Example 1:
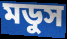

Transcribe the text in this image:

মডুস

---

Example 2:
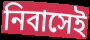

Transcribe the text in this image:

নিবাসেই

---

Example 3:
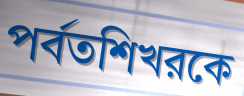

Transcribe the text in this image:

পর্বতশিখরকে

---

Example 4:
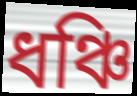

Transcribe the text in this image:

ধঞ্চি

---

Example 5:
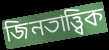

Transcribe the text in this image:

জিনতাত্ত্বিক